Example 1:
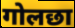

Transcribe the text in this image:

गोलछा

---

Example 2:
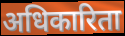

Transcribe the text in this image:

अधिकारिता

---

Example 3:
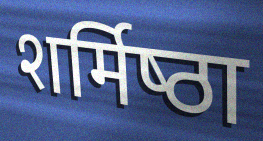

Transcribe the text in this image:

शर्मिष्‍ठा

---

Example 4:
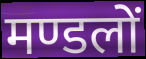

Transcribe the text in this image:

मण्‍डलों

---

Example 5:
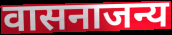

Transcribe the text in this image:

वासनाजन्य